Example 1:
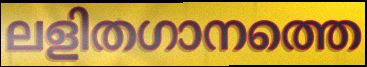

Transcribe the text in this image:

ലളിതഗാനത്തെ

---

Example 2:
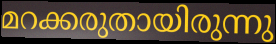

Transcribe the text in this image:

മറക്കരുതായിരുന്നു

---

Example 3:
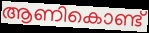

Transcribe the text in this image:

ആണികൊണ്ട്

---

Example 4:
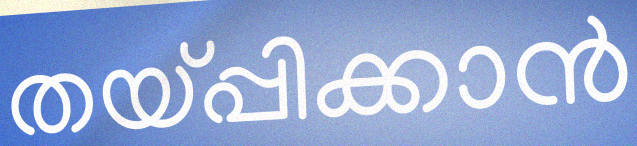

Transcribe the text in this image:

തയ്പ്പിക്കാൻ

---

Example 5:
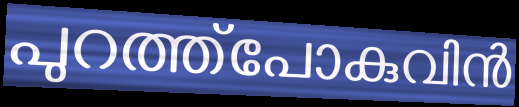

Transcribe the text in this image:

പുറത്ത്പോകുവിൻ